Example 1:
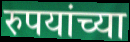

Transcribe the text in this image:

रुपयांच्या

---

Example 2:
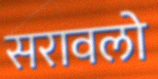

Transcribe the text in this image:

सरावलो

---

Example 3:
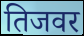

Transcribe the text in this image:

तिजवर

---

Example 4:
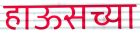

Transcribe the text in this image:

हाऊसच्या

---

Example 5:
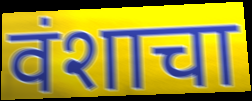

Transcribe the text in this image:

वंशाचा